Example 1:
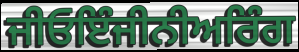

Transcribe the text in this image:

ਜੀਓਇੰਜੀਨੀਅਰਿੰਗ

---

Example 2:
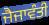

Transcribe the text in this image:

ਜੈਜਾਵੰਤੀ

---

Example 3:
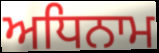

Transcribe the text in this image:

ਅਧਿਨਾਮ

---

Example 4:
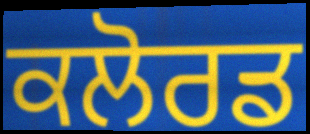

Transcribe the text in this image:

ਕਲੋਰਡ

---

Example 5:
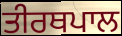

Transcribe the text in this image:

ਤੀਰਥਪਾਲ